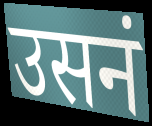
उसनं